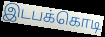
இடபக்கொடி